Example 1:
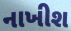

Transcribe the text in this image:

નાખીશ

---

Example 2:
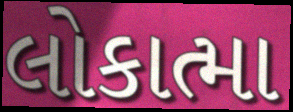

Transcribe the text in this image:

લોકાત્મા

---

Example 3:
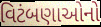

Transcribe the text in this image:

વિટંબણાઓનો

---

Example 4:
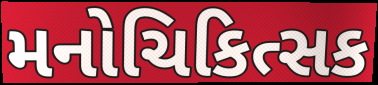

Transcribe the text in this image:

મનોચિકિત્સક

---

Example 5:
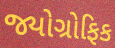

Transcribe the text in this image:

જ્યોગ્રોફિક